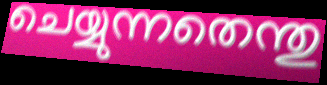
ചെയ്യുന്നതെന്തു